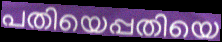
പതിയെപ്പതിയെ